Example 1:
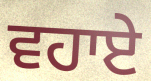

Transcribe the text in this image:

ਵਹਾਏ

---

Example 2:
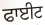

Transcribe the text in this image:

ਫਾਈਟ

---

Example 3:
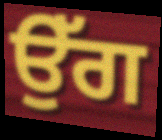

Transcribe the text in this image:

ਉੱਗ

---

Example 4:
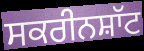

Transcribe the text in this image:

ਸਕਰੀਨਸ਼ਾੱਟ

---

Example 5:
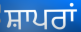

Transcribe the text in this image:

ਸ਼ਾਪਰਾਂ